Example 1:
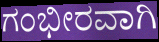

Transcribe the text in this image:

ಗಂಭೀರವಾಗಿ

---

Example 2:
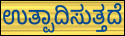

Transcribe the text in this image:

ಉತ್ಪಾದಿಸುತ್ತದೆ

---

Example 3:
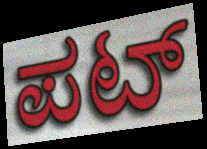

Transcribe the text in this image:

ಪಟ್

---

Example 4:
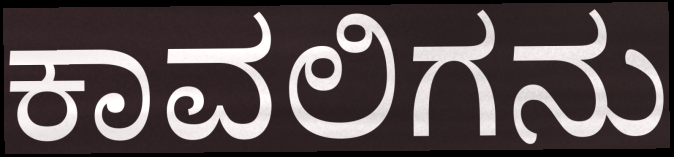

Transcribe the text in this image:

ಕಾವಲಿಗನು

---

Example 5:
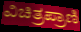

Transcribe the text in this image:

ವಿಚಿತ್ರಪ್ರಾಣಿ